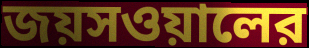
জয়সওয়ালের